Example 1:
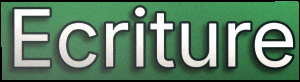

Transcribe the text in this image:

Ecriture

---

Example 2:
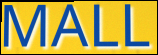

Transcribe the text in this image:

MALL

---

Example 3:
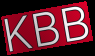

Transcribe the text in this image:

KBB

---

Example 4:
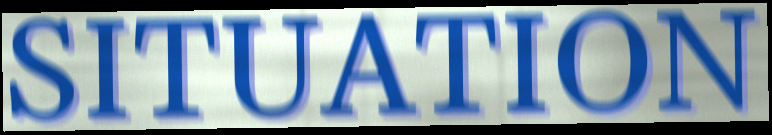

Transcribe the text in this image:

SITUATION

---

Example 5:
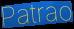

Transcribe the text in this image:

Patrao